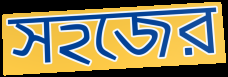
সহজের